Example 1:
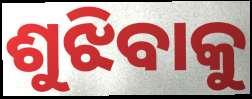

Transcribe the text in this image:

ଶୁଝିବାକୁ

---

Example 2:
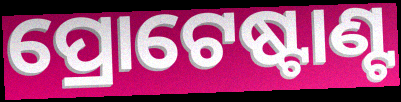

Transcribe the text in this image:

ପ୍ରୋଟେଷ୍ଟାଣ୍ଟ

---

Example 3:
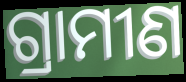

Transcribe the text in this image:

ଗ୍ରାମୀଣ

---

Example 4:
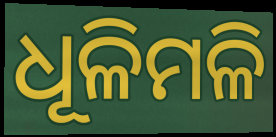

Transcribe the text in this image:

ଧୂଳିମଳି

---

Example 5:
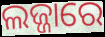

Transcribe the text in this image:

ଲଜ୍ଜାରେ